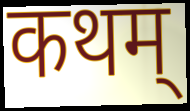
कथम्